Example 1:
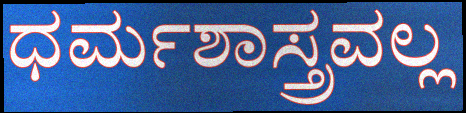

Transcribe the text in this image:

ಧರ್ಮಶಾಸ್ತ್ರವಲ್ಲ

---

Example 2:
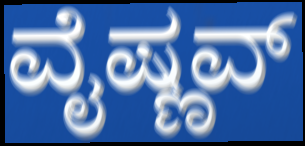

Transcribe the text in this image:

ವೈಷ್ಣವ್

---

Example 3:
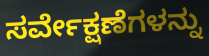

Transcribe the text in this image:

ಸರ್ವೇಕ್ಷಣೆಗಳನ್ನು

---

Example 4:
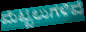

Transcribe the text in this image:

ಮೆಟ್ಟಲುಗಳಿವೆ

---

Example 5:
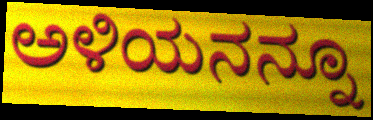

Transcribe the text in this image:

ಅಳಿಯನನ್ನೂ